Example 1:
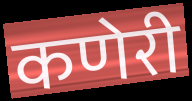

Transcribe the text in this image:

कणेरी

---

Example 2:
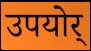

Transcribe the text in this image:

उपयोर्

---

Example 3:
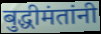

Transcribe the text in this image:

बुद्धीमंतांनी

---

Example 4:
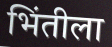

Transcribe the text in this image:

भिंतीला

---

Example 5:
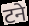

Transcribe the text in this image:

टने